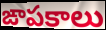
ఙాపకాలు